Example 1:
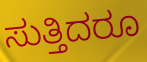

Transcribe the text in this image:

ಸುತ್ತಿದರೂ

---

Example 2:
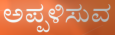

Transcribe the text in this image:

ಅಪ್ಪಳಿಸುವ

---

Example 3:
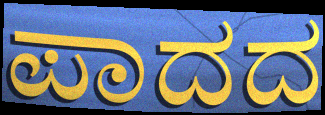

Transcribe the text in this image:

ಪಾದದ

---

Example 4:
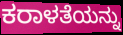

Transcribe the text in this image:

ಕರಾಳತೆಯನ್ನು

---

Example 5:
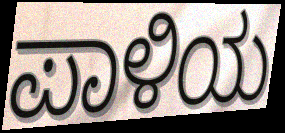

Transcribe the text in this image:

ಪಾಳಿಯ